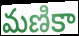
మణికా